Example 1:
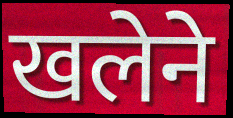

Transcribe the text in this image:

खलेने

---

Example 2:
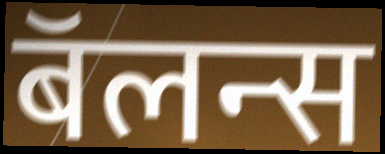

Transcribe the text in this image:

बॅलन्स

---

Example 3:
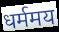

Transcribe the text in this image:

धर्ममय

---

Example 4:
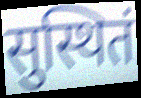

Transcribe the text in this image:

सुस्थितं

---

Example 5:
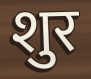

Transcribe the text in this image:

शुर